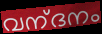
വന്‌ദനം